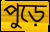
পুড়ে